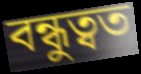
বন্ধুত্বত